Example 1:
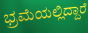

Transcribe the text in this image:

ಭ್ರಮೆಯಲ್ಲಿದ್ದಾರೆ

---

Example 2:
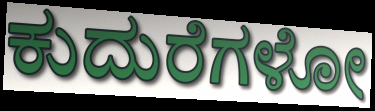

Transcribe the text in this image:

ಕುದುರೆಗಳೋ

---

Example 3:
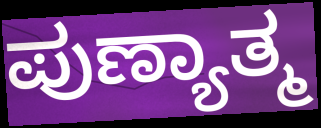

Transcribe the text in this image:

ಪುಣ್ಯಾತ್ಮ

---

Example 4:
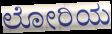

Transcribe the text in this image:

ಲೋರಿಯ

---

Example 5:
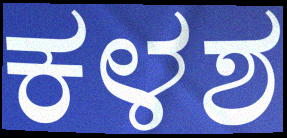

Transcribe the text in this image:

ಕಳಶ